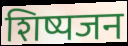
शिष्यजन